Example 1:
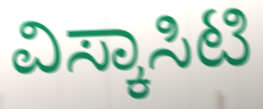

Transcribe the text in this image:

ವಿಸ್ಕಾಸಿಟಿ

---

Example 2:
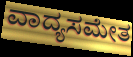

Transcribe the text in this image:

ವಾದ್ಯಸಮೇತ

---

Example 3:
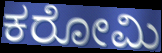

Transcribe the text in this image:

ಕರೋಮಿ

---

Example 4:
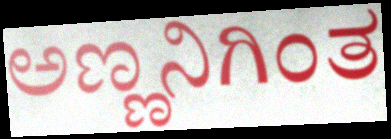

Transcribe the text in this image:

ಅಣ್ಣನಿಗಿಂತ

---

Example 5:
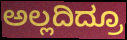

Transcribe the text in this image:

ಅಲ್ಲದಿದ್ರೂ